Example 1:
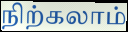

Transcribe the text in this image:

நிற்கலாம்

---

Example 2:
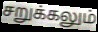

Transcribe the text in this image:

சறுக்கலும்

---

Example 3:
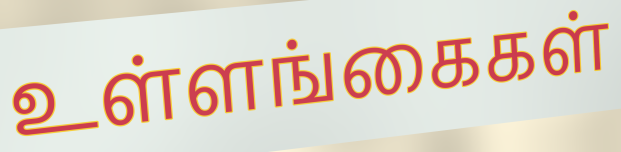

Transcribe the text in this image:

உள்ளங்கைகள்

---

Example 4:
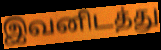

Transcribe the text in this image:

இவனிடத்து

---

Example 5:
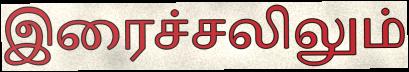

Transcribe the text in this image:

இரைச்சலிலும்